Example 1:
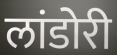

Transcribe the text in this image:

लांडोरी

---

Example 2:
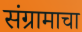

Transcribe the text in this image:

संग्रामाचा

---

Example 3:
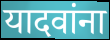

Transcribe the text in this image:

यादवांना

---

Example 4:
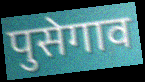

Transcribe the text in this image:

पुसेगाव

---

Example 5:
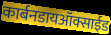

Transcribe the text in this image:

कार्बनडायऑक्साईड